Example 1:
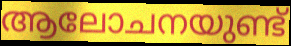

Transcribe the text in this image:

ആലോചനയുണ്ട്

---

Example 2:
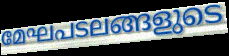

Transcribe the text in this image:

മേഘപടലങ്ങളുടെ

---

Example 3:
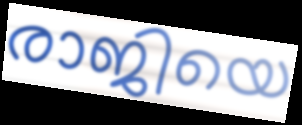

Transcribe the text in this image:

രാജിയെ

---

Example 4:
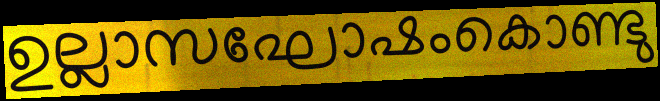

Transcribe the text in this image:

ഉല്ലാസഘോഷംകൊണ്ടു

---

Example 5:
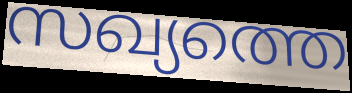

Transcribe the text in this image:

സഖ്യത്തെ